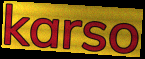
karso